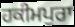
ਹਕੀਮਪੁਰਾ